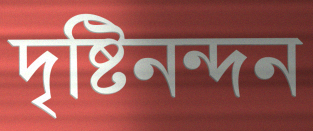
দৃষ্টিনন্দন